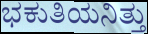
ಭಕುತಿಯನಿತ್ತು